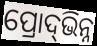
ପ୍ରୋଦ୍‌ଭିନ୍ନ